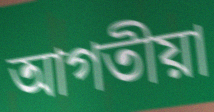
আগতীয়া